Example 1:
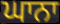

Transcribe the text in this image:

ਘਾਨਾ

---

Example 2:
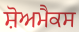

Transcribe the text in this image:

ਸ਼ੋਅਮੈਕਸ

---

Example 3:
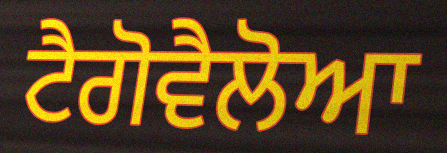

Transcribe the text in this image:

ਟੈਗੋਵੈਲੋਆ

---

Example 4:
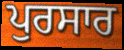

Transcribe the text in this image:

ਪੁਰਸਾਰ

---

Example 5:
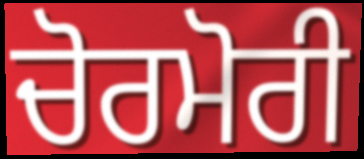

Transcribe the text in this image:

ਚੋਰਮੋਰੀ